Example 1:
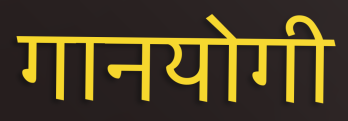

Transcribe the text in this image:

गानयोगी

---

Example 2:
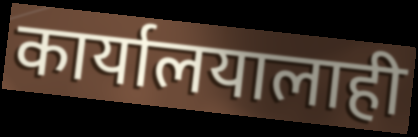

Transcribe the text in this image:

कार्यालयालाही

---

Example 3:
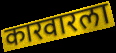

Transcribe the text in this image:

कारवारला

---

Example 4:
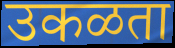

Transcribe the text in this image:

उकळता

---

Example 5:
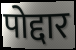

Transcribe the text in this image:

पोद्दार